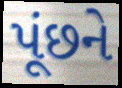
પૂંછને